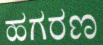
ಹಗರಣ